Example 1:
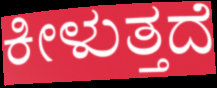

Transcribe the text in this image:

ಕೀಳುತ್ತದೆ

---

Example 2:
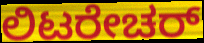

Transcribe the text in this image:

ಲಿಟರೇಚರ್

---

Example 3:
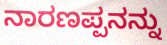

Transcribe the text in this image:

ನಾರಣಪ್ಪನನ್ನು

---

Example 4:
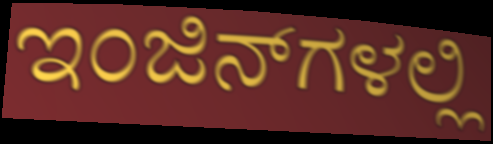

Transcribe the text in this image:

ಇಂಜಿನ್‌ಗಳಲ್ಲಿ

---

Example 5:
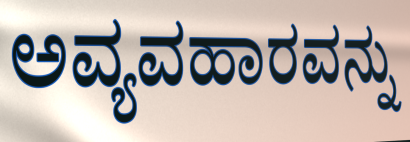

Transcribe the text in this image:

ಅವ್ಯವಹಾರವನ್ನು